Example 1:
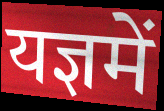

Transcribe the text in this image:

यज्ञमें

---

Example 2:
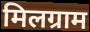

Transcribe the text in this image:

मिलग्राम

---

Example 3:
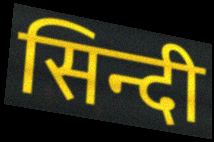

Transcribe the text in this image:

सिन्दी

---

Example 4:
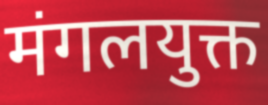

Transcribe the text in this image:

मंगलयुक्त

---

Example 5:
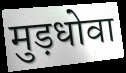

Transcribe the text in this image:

मुड़धोवा